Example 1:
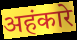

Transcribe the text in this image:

अहंकारे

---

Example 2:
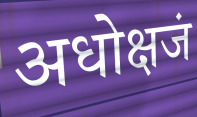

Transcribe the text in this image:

अधोक्षजं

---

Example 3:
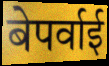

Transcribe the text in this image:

बेपर्वाई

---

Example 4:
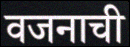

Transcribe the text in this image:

वजनाची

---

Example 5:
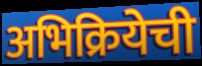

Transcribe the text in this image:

अभिक्रियेची